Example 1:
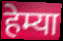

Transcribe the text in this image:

हेम्या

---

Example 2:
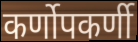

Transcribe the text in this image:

कर्णोपकर्णी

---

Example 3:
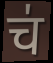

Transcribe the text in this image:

च॑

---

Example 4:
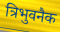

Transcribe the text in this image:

त्रिभुवनैक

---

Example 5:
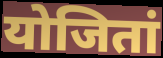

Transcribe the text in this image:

योजितां